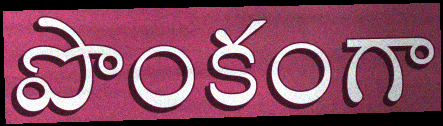
పొంకంగా